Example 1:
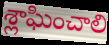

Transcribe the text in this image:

శ్లాఘించాలి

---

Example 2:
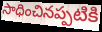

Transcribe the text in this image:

సాధించినప్పటికి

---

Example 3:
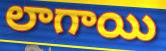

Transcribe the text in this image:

లాగాయి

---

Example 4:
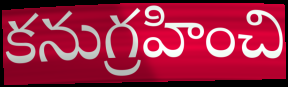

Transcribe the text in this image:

కనుగ్రహించి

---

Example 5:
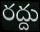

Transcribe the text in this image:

రద్దు